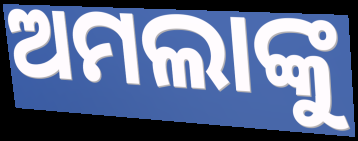
ଅମଲାଙ୍କୁ